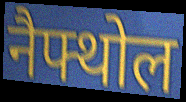
नैफ्थोल